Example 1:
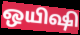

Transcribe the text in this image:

ஒயிஷி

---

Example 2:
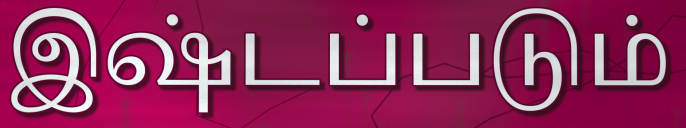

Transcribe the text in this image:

இஷ்டப்படும்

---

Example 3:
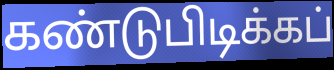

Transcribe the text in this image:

கண்டுபிடிக்கப்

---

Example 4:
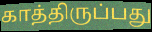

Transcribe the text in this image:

காத்திருப்பது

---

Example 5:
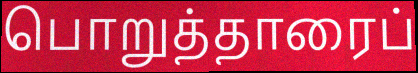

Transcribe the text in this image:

பொறுத்தாரைப்